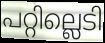
പറ്റില്ലെടി